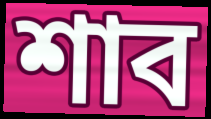
শাব